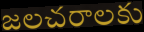
జలచరాలకు